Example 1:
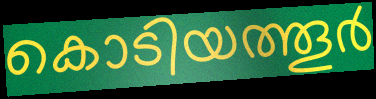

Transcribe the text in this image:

കൊടിയത്തൂർ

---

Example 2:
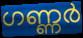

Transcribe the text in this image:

ഗണ്ണർ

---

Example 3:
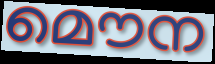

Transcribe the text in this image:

മൌന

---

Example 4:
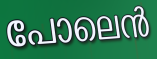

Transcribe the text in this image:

പോലെൻ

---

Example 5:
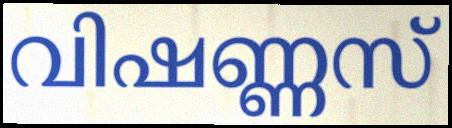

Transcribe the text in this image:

വിഷണ്ണസ്